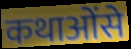
कथाओंसे